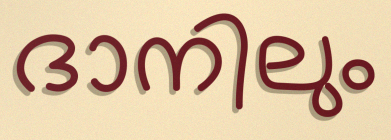
ദാനിലും